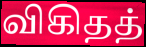
விகிதத்